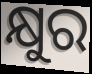
କ୍ଷୁର